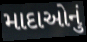
માદાઓનું